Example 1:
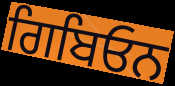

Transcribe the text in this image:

ਗਿਬਿਓਨ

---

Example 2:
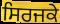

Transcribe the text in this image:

ਸਿਰਜਕੇ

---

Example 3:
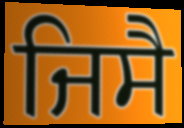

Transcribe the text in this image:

ਜਿਸੈ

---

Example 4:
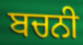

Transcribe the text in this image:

ਬਚਨੀ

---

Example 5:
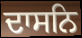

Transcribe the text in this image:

ਦਾਸਨਿ